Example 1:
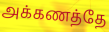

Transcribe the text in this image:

அக்கணத்தே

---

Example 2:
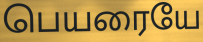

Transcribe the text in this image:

பெயரையே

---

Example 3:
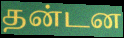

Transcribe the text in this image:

தன்டன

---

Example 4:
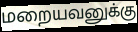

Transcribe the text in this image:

மறையவனுக்கு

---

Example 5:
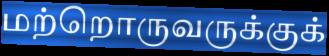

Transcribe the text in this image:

மற்றொருவருக்குக்